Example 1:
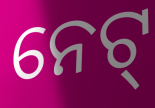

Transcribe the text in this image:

ନେଟ୍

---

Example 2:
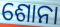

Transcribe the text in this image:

ଶୋନା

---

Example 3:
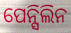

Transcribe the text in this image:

ପେନ୍ସିଲିନ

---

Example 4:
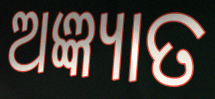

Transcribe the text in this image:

ଅଜ୍ଞ୍ୟାତ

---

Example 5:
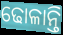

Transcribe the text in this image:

ଢୋଳାନ୍ତି